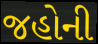
જહોની